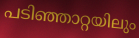
പടിഞ്ഞാറ്റയിലും